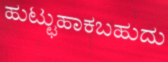
ಹುಟ್ಟುಹಾಕಬಹುದು